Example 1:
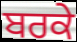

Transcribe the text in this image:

ਬਰਕੇ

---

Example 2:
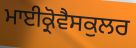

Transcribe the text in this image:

ਮਾਈਕ੍ਰੋਵੈਸਕੁਲਰ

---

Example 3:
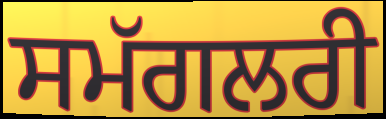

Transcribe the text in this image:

ਸਮੱਗਲਰੀ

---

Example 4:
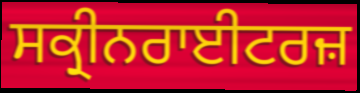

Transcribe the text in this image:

ਸਕ੍ਰੀਨਰਾਈਟਰਜ਼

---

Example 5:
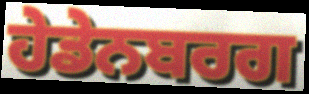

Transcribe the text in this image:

ਹੇਡੇਨਬਰਗ